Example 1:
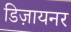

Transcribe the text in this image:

डिज़ायनर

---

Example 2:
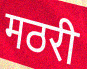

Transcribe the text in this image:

मठरी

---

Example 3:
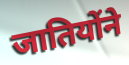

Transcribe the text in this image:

जातियोंने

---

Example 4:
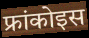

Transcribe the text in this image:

फ्रांकोइस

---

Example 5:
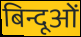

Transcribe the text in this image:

बिन्दूओं